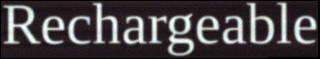
Rechargeable